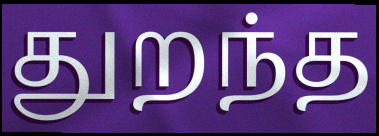
துறந்த